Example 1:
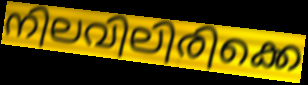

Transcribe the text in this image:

നിലവിലിരിക്കെ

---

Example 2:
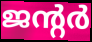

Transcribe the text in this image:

ജന്റർ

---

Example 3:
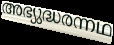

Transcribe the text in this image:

അഭ്യുദ്ധരന്നഥ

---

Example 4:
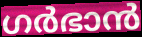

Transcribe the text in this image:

ഗർഭാൻ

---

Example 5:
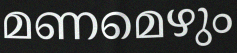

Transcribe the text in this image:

മണമെഴും